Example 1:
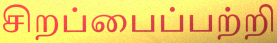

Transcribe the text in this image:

சிறப்பைப்பற்றி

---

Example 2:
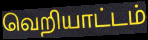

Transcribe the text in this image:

வெறியாட்டம்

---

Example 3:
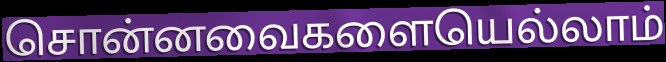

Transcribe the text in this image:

சொன்னவைகளையெல்லாம்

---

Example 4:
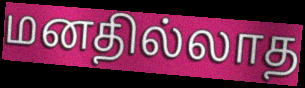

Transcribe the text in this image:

மனதில்லாத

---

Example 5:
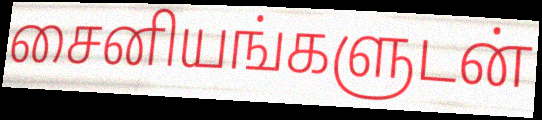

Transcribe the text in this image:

சைனியங்களுடன்